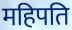
महिपति